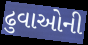
ઢુવાઓની